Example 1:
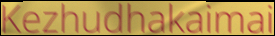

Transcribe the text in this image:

Kezhudhakaimai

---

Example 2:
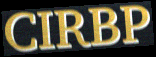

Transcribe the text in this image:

CIRBP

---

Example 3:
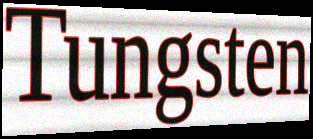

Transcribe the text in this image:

Tungsten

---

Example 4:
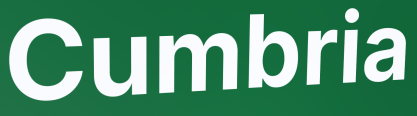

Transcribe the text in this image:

Cumbria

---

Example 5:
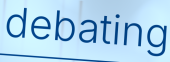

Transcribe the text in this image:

debating